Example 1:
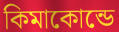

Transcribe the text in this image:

কিমাকোন্ডে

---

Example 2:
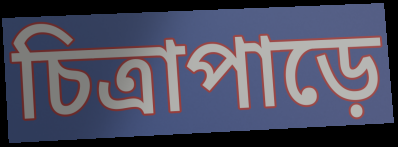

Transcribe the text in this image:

চিত্রাপাড়ে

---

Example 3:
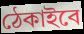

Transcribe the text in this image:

ঠেকাইবে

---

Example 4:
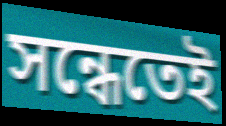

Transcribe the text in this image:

সন্ধেতেই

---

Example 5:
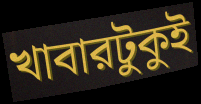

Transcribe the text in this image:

খাবারটুকুই